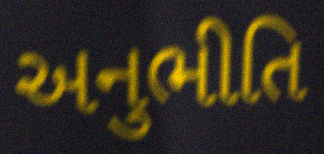
અનુભીતિ